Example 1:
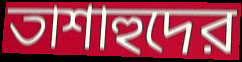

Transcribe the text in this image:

তাশাহুদের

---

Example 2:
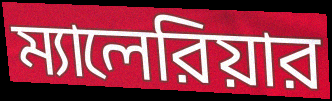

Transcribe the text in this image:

ম্যালেরিয়ার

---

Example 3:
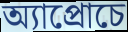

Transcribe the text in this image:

অ্যাপ্রোচে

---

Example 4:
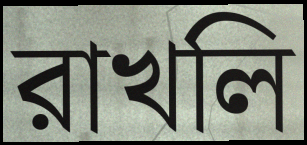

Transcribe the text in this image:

রাখলি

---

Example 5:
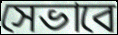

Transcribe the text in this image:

সেভাবে